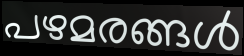
പഴമരങ്ങൾ